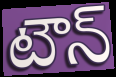
టౌన్